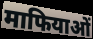
माफियाओं